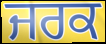
ਜਰਕ